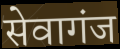
सेवागंज